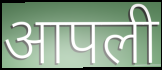
आपली